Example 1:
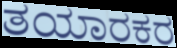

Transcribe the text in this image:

ತಯಾರಕರ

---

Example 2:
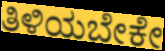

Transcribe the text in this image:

ತಿಳಿಯಬೇಕೇ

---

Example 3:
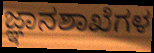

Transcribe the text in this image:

ಜ್ಞಾನಶಾಖೆಗಳ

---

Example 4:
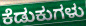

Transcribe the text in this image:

ಕೆಡುಕುಗಳು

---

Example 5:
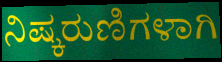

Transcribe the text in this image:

ನಿಷ್ಕರುಣಿಗಳಾಗಿ